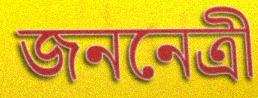
জননেত্রী